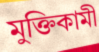
মুক্তিকামী